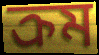
ক্রম